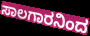
ಸಾಲಗಾರನಿಂದ